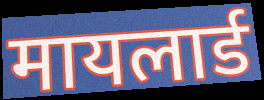
मायलार्ड